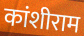
कांशीराम